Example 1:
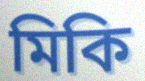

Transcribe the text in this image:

মিকি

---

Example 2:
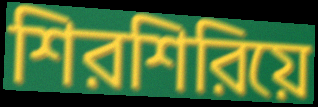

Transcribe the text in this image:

শিরশিরিয়ে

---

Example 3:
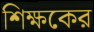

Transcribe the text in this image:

শিক্ষকের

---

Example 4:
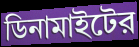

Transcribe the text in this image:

ডিনামাইটের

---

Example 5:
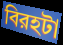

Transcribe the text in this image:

বিরহটা